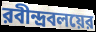
রবীন্দ্রবলয়ের